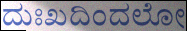
ದುಃಖದಿಂದಲೋ